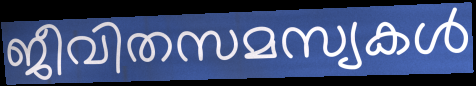
ജീവിതസമസ്യകൾ